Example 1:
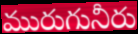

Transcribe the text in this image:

మురుగునీరు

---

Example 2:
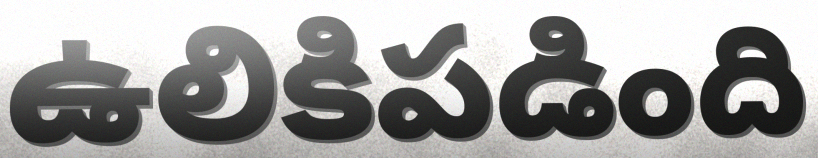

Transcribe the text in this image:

ఉలికిపడింది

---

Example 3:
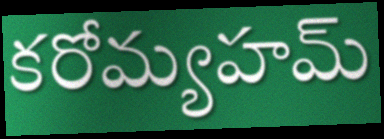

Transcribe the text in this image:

కరోమ్యహమ్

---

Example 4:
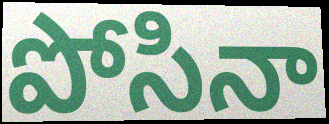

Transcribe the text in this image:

పోసినా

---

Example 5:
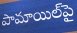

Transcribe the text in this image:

పామాయిల్‌పై